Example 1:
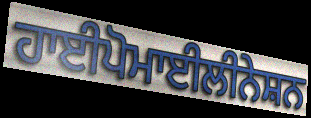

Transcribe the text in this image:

ਹਾਈਪੋਮਾਈਲੀਨੇਸ਼ਨ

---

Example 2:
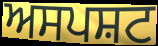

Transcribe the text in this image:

ਅਸਪਸ਼ਟ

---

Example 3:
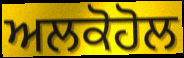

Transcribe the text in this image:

ਅਲਕੋਹੋਲ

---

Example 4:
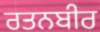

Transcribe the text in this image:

ਰਤਨਬੀਰ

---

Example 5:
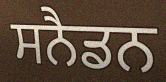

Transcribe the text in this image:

ਸਨੈਡਨ